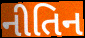
નીતિન